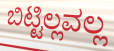
ಬಿಟ್ಟಿಲ್ಲವಲ್ಲ